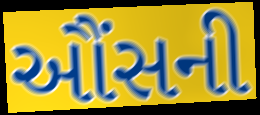
ઔંસની